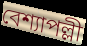
বেশ্যাপল্লী